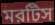
মরটিস